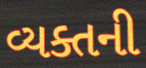
વ્યક્તની